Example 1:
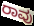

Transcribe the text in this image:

ರಾವು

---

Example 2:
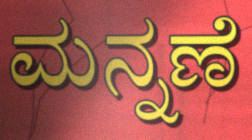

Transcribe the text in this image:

ಮನ್ನಣೆ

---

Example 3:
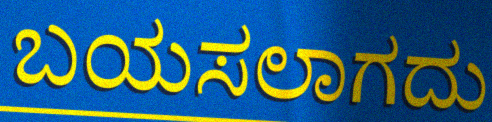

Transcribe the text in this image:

ಬಯಸಲಾಗದು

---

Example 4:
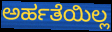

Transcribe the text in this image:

ಅರ್ಹತೆಯಿಲ್ಲ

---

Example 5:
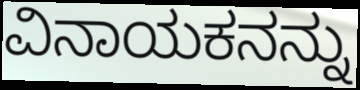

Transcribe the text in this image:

ವಿನಾಯಕನನ್ನು